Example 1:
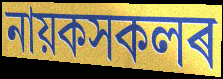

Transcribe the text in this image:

নায়কসকলৰ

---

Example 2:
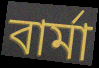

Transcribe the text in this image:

বাৰ্মা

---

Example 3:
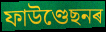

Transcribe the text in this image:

ফাউণ্ডেছনৰ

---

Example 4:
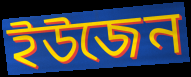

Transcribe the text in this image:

ইউজেন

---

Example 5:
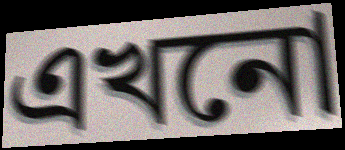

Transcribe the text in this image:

এখনো